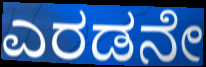
ಎರಡನೇ